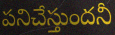
పనిచేస్తుందనీ